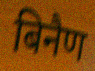
बिनैण